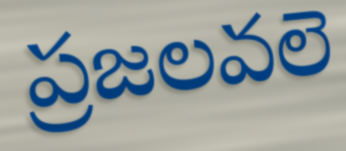
ప్రజలవలె